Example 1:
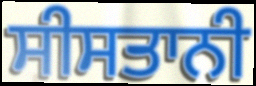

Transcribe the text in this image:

ਸੀਸਤਾਨੀ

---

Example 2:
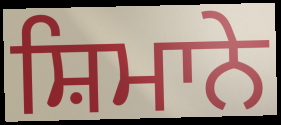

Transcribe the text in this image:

ਸ਼ਿਮਾਨੇ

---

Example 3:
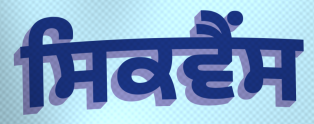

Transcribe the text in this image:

ਸਿਕਵੈਂਸ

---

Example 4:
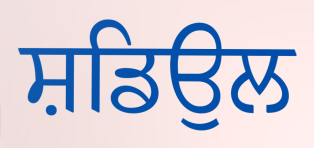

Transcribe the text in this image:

ਸ਼ਡਿਉਲ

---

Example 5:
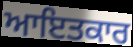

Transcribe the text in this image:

ਆਇਤਕਾਰ